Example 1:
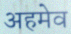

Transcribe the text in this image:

अहमेव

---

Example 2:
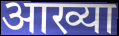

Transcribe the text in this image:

आख्या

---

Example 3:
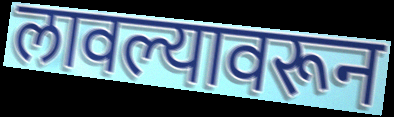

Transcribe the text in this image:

लावल्यावरून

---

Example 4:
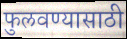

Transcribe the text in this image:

फुलवण्यासाठी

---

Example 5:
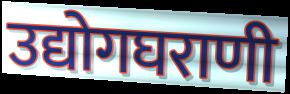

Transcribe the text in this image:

उद्योगघराणी